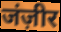
जंज़ीर